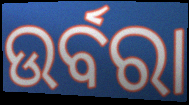
ଉର୍ବରା